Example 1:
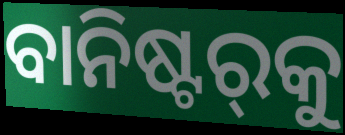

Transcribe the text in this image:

ବାନିଷ୍ଟର୍‍କୁ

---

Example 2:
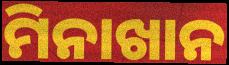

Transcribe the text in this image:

ମିନାଖାନ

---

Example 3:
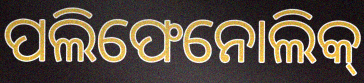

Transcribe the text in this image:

ପଲିଫେନୋଲିକ୍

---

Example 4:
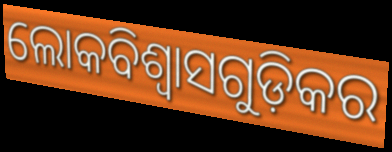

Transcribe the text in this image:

ଲୋକବିଶ୍ଵାସଗୁଡ଼ିକର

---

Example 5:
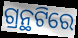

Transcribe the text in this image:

ଗ୍ରନ୍ଥଟିରେ